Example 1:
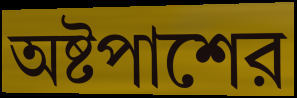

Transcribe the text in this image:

অষ্টপাশের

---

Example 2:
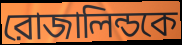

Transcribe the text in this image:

রোজালিন্ডকে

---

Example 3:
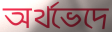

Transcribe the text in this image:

অর্থভেদে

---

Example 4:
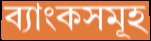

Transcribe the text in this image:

ব্যাংকসমূহ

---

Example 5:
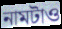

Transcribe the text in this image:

নামটাও